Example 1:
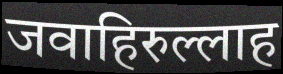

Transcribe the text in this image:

जवाहिरुल्लाह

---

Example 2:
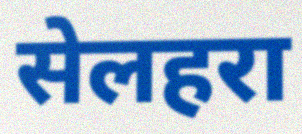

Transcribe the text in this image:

सेलहरा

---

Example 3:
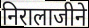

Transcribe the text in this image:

निरालाजीने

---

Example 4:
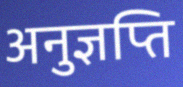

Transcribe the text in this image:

अनुज्ञप्ति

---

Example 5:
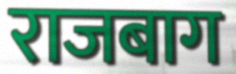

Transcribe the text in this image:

राजबाग